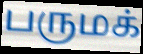
பருமக்